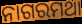
ନାଗରମଥା